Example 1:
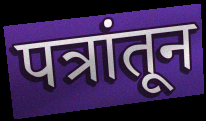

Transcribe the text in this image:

पत्रांतून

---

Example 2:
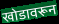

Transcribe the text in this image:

खोडावरून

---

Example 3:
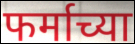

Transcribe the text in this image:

फर्माच्या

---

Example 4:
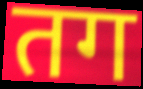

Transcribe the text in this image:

तग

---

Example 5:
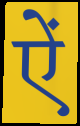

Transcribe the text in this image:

ऐं